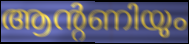
ആന്റണിയും